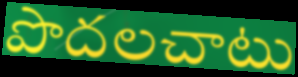
పొదలచాటు